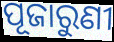
ପୂଜାରୁଣୀ